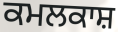
ਕਮਲਕਾਸ਼